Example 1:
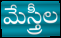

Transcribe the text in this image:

మేస్త్రీల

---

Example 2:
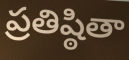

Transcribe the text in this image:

ప్రతిష్ఠితా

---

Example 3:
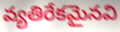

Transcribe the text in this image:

వ్యతిరేకమైనవి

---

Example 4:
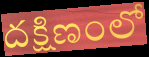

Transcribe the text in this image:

దక్షిణంలో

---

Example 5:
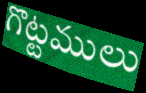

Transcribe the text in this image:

గొట్టములు